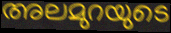
അലമുറയുടെ